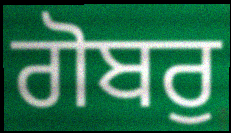
ਗੋਬਰੁ